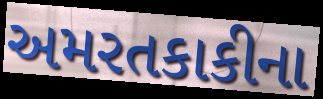
અમરતકાકીના